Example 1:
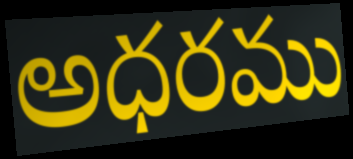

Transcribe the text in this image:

అధరము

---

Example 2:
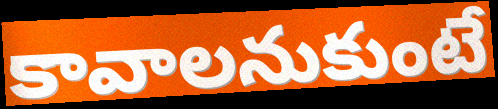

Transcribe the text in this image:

కావాలనుకుంటే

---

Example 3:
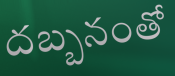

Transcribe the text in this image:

దబ్బనంతో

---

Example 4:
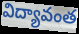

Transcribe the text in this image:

విద్యావంత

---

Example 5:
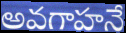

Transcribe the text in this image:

అవగాహనే